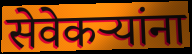
सेवेकऱ्यांना